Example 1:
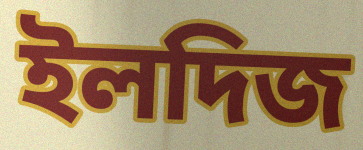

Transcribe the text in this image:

ইলদিজ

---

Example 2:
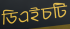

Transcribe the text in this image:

ডিএইচটি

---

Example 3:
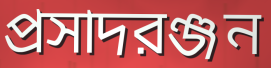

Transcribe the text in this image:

প্রসাদরঞ্জন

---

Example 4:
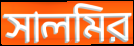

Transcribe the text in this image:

সালমির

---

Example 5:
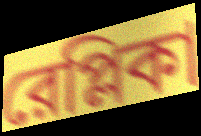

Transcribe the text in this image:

রেপ্লিকা